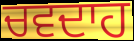
ਚਵਦਾਹ